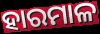
ହାରମାଳ